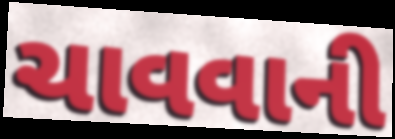
ચાવવાની